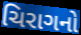
ચિરાગનો